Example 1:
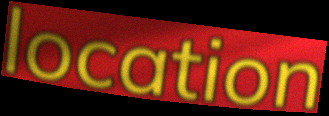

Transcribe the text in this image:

location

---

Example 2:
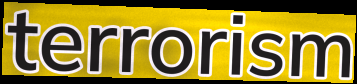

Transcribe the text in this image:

terrorism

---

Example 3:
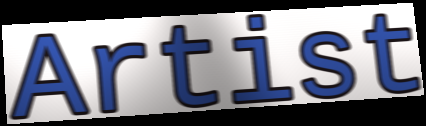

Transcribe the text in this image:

Artist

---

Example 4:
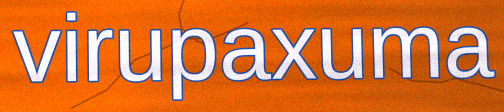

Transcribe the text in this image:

virupaxuma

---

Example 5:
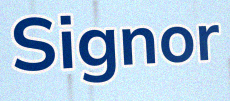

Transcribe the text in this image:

Signor